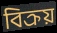
বিক্রয়